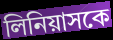
লিনিয়াসকে